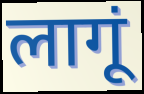
लागूं